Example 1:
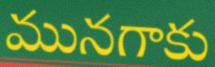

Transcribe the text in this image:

మునగాకు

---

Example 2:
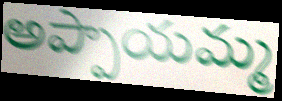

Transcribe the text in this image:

అప్పాయమ్మ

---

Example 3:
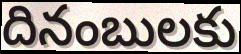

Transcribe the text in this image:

దినంబులకు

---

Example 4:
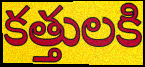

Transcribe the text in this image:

కత్తులకి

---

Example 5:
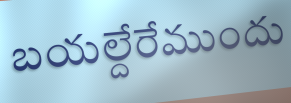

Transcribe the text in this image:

బయల్దేరేముందు